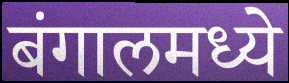
बंगालमध्ये